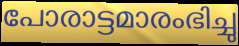
പോരാട്ടമാരംഭിച്ചു